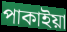
পাকাইয়া